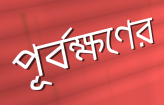
পূর্বক্ষণের